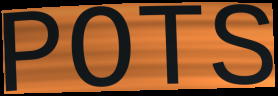
POTS